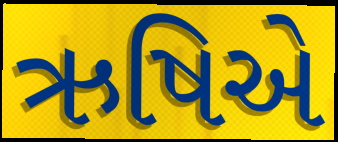
ઋષિએ